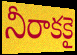
నీరాకకై